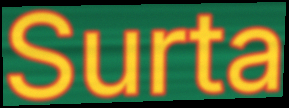
Surta